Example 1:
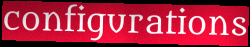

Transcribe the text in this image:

configurations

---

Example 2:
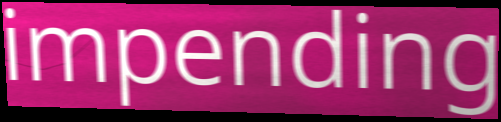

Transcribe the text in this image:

impending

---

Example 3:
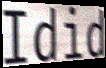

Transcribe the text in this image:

Idid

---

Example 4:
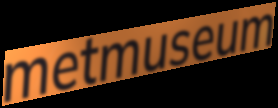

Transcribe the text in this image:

metmuseum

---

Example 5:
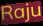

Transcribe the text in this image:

Raju